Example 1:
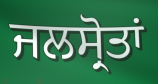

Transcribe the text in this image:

ਜਲਸ੍ਰੋਤਾਂ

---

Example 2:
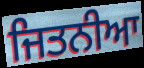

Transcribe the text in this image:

ਜਿਤਨੀਆ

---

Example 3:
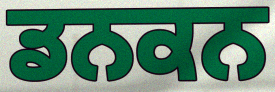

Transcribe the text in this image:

ਡਨਕਨ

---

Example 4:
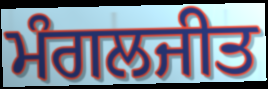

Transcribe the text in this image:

ਮੰਗਲਜੀਤ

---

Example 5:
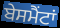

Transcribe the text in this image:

ਬੇਸਮੈਂਟਾਂ